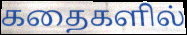
கதைகளில்